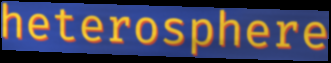
heterosphere